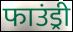
फाउंड्री